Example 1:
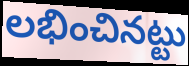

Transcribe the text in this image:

లభించినట్టు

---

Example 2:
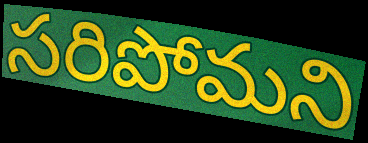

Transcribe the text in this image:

సరిపోమని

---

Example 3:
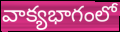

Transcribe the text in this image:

వాక్యభాగంలో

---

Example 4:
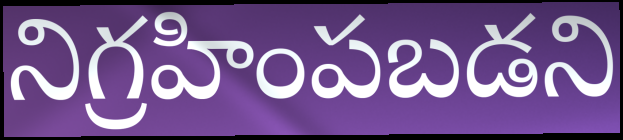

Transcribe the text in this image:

నిగ్రహింపబడని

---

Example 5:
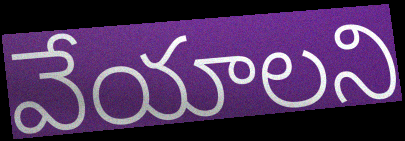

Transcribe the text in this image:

వేయాలని